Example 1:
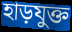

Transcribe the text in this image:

হাড়যুক্ত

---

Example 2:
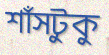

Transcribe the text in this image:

শাঁসটুকু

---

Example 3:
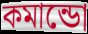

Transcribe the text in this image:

কমান্ডো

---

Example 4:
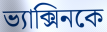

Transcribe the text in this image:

ভ্যাক্সিনকে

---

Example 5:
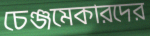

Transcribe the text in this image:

চেঞ্জমেকারদের